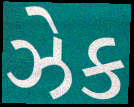
ઝેક